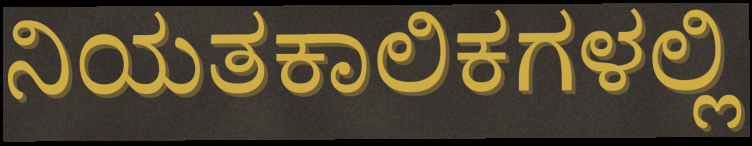
ನಿಯತಕಾಲಿಕಗಳಲ್ಲಿ